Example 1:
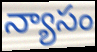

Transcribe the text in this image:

న్యాసం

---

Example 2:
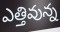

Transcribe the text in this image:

ఎత్తివున్న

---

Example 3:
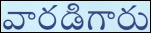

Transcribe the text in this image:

వారడిగారు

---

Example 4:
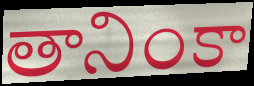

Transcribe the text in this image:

తానింకా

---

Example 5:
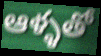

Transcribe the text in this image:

ఆళ్ళతో